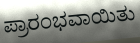
ಪ್ರಾರಂಭವಾಯಿತು